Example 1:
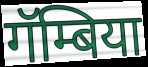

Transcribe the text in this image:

गॅम्बिया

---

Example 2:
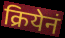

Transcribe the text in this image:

क्रियेनं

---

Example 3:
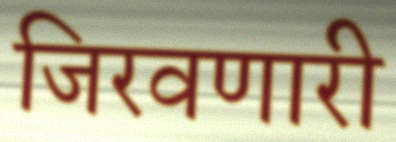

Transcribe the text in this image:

जिरवणारी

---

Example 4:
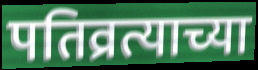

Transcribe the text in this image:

पतिव्रत्याच्या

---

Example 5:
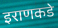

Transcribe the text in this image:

इराणकडे